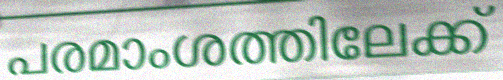
പരമാംശത്തിലേക്ക്